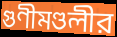
গুণীমণ্ডলীর